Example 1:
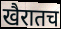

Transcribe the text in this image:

खैरातच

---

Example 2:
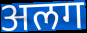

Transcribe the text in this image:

अलग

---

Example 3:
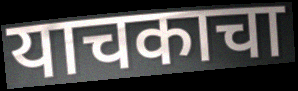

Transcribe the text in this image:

याचकाचा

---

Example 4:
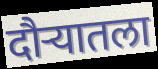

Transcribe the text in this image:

दौऱ्यातला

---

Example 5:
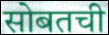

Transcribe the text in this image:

सोबतची